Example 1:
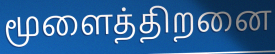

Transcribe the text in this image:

மூளைத்திறனை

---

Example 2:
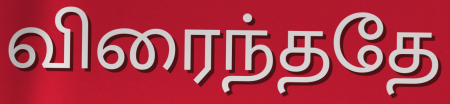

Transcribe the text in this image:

விரைந்ததே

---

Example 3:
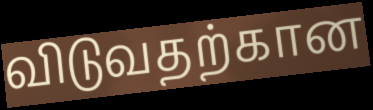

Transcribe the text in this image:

விடுவதற்கான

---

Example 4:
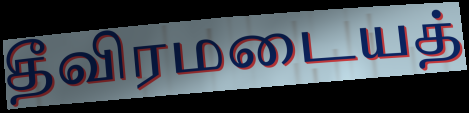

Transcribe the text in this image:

தீவிரமடையத்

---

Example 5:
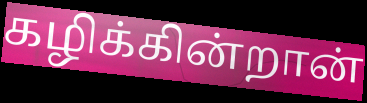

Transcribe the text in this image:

கழிக்கின்றான்